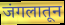
जंगलातून